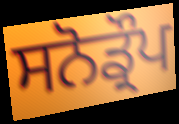
ਸਨੋਡ੍ਰੌਪ